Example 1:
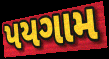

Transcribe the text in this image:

પયગામ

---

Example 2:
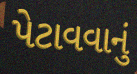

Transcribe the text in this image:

પેટાવવાનું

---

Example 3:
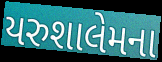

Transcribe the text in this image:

યરુશાલેમના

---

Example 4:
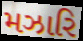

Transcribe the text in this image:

મઝારિ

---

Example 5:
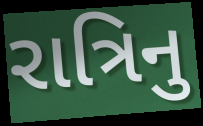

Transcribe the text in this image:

રાત્રિનુ